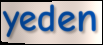
yeden